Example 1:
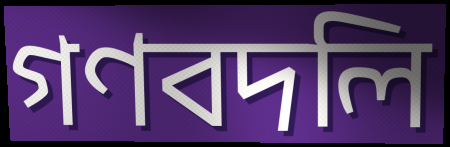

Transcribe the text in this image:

গণবদলি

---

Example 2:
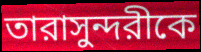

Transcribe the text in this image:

তারাসুন্দরীকে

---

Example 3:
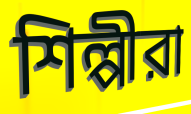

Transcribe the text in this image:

শিল্পীরা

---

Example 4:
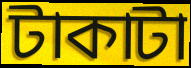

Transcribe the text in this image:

টাকাটা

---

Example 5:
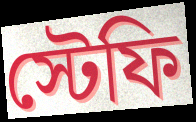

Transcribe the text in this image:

স্টেফি